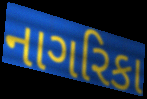
નાગરિકા